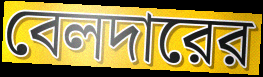
বেলদারের